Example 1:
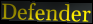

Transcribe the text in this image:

Defender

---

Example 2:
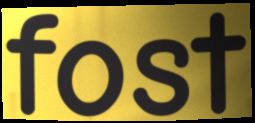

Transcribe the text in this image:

fost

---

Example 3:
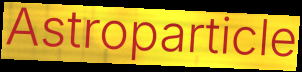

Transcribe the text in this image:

Astroparticle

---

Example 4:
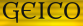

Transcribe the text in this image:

GEICO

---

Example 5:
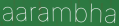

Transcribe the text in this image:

aarambha